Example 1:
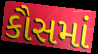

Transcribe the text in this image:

કૌસમાં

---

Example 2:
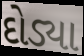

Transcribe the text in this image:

દોડ્યા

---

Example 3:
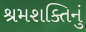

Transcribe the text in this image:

શ્રમશક્તિનું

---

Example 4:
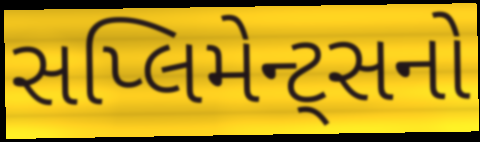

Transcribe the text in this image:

સપ્લિમેન્ટ્સનો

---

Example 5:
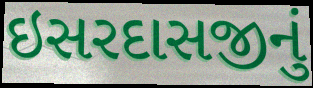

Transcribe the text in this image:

ઇસરદાસજીનું